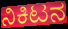
ನಿಕಿಟನ